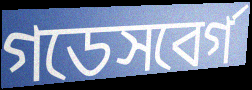
গডেসবের্গ